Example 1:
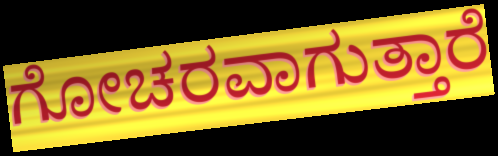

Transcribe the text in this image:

ಗೋಚರವಾಗುತ್ತಾರೆ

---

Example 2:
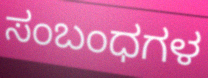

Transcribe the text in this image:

ಸಂಬಂಧಗಳ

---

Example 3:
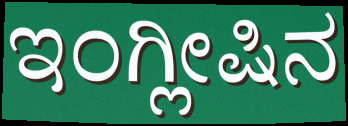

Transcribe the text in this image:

ಇಂಗ್ಲೀಷಿನ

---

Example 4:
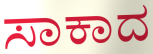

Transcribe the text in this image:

ಸಾಕಾದ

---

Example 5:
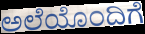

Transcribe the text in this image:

ಅಲೆಯೊಂದಿಗೆ